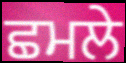
ਛਮਲੇ